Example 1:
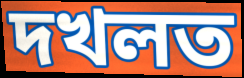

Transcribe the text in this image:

দখলত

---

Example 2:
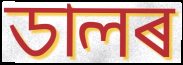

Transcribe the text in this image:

ডালৰ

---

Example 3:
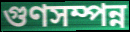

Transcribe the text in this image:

গুণসম্পন্ন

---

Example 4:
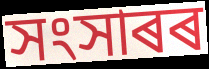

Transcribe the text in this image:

সংসাৰৰ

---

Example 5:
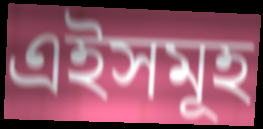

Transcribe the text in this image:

এইসমূহ